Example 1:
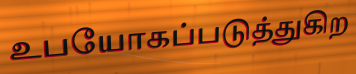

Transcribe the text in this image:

உபயோகப்படுத்துகிற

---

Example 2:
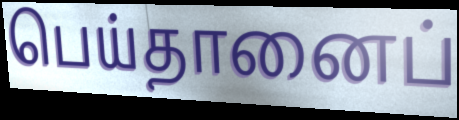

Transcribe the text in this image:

பெய்தானைப்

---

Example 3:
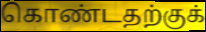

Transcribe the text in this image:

கொண்டதற்குக்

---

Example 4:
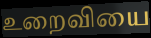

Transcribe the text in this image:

உறைவியை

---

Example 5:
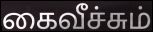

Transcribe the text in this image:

கைவீச்சும்